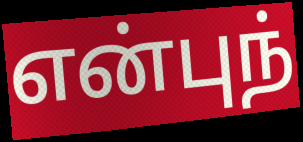
என்புந்